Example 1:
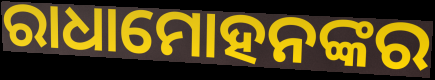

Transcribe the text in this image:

ରାଧାମୋହନଙ୍କର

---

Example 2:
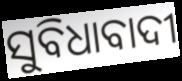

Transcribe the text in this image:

ସୁବିଧାବାଦୀ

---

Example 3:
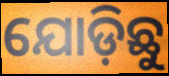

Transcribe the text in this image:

ଯୋଡ଼ିଛୁ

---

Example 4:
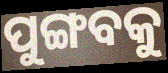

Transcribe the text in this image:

ପୁଙ୍ଗବକୁ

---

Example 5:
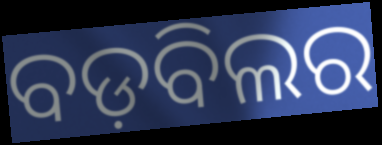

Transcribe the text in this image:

ବଡ଼ବିଲର